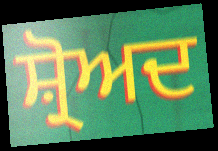
ਸ਼੍ਰੋਅਦ